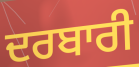
ਦਰਬਾਰੀ